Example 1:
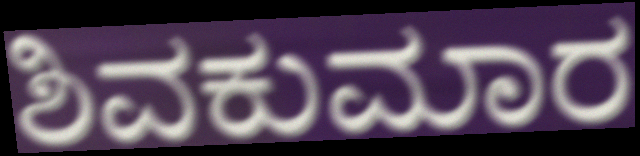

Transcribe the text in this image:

ಶಿವಕುಮಾರ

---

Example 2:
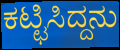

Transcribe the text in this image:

ಕಟ್ಟಿಸಿದ್ದನು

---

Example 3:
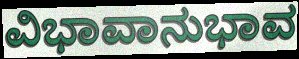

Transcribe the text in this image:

ವಿಭಾವಾನುಭಾವ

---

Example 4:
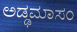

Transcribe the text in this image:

ಅಡ್ಢಮಾಸಂ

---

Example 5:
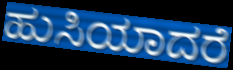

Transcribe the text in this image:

ಹುಸಿಯಾದರೆ